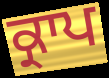
ਕ੍ਰਾਪ